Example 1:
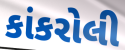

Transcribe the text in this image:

કાંકરોલી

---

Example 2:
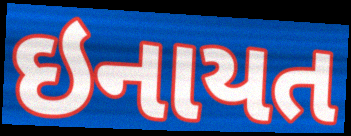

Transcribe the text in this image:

ઇનાયત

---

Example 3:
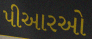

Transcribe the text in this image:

પીઆરઓ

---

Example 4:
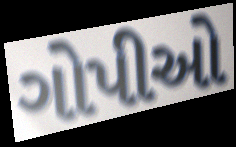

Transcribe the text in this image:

ગોપીઓ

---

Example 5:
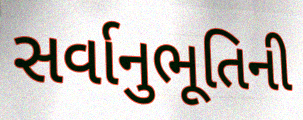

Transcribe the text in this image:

સર્વાનુભૂતિની